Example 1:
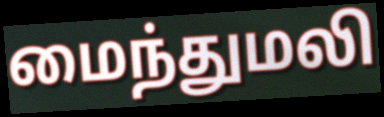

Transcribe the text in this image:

மைந்துமலி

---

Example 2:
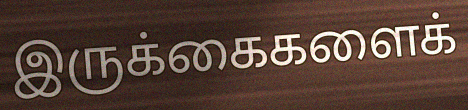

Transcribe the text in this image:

இருக்கைகளைக்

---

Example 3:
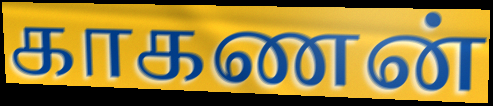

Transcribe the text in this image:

காகணன்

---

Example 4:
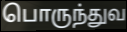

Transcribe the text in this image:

பொருந்துவ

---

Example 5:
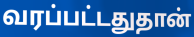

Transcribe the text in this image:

வரப்பட்டதுதான்